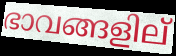
ഭാവങ്ങളില്